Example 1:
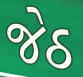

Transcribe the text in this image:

જેઠ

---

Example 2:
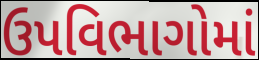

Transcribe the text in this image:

ઉપવિભાગોમાં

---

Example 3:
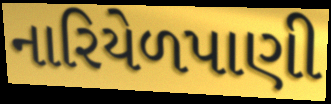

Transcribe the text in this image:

નારિયેળપાણી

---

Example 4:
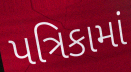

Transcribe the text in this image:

પત્રિકામાં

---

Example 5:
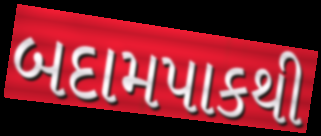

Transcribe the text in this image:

બદામપાકથી